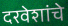
दरवेशांचे